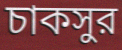
চাকসুর